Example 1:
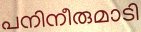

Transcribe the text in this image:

പനിനീരുമാടി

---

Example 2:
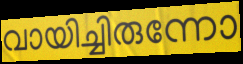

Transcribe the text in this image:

വായിച്ചിരുന്നോ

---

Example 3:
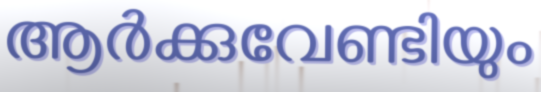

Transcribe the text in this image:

ആർക്കുവേണ്ടിയും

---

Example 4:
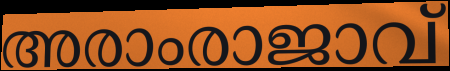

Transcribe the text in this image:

അരാംരാജാവ്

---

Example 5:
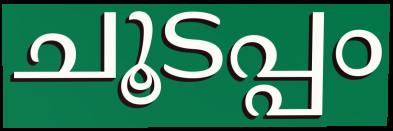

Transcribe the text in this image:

ചൂടപ്പം